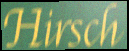
Hirsch